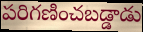
పరిగణించబడ్డాడు